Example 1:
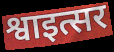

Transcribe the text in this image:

श्वाइत्सर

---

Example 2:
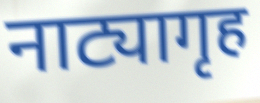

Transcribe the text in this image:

नाट्यागृह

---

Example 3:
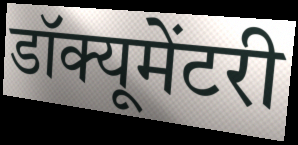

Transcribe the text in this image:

डॉक्यूमेंटरी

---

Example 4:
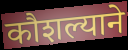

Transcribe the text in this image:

कौशल्याने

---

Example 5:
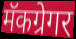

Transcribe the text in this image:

मॅकग्रेगर